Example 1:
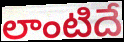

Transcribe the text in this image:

లాంటిదే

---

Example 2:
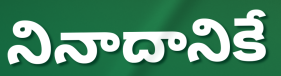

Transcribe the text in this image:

నినాదానికే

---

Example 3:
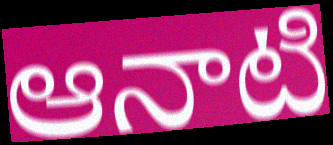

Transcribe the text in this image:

ఆనాటి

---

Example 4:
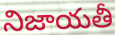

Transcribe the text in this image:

నిజాయతీ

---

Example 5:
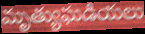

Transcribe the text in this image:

మృత్యుఘడియలు